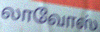
லாவோஸ்